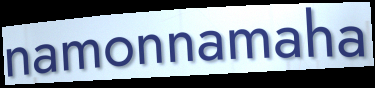
namonnamaha